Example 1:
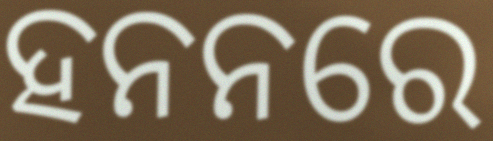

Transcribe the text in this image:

ହନନରେ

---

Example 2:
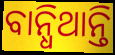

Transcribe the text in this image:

ବାନ୍ଧିଥାନ୍ତି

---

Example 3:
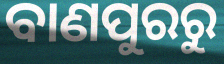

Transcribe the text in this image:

ବାଣପୁରରୁ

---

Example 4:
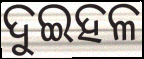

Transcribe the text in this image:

ଦୁଇହଳ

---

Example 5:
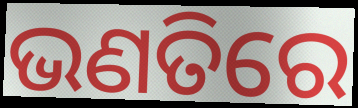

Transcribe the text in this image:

ଭଣତିରେ